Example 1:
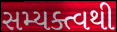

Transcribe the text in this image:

સમ્યક્ત્વથી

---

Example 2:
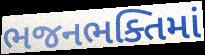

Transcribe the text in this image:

ભજનભક્તિમાં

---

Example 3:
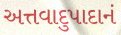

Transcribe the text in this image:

અત્તવાદુપાદાનં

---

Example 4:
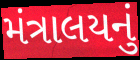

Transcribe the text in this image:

મંત્રાલયનું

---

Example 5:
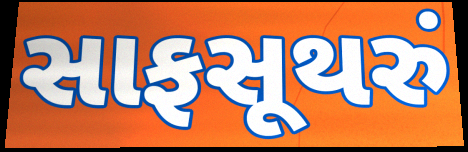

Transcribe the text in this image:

સાફસૂથરું